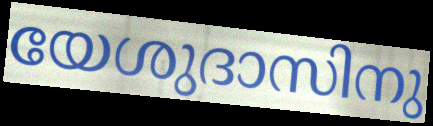
യേശുദാസിനു